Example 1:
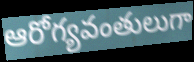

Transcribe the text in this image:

ఆరోగ్యవంతులుగా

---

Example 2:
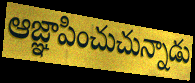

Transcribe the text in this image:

ఆజ్ఞాపించుచున్నాడు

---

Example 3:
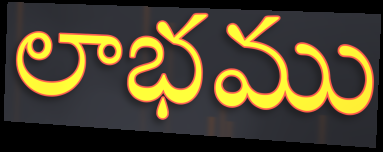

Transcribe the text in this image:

లాభము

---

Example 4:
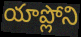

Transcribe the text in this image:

యాప్లోని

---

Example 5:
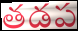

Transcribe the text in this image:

తడప